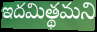
ఇదమిత్థమని